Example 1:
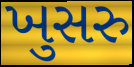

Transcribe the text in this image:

ખુસરુ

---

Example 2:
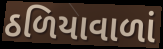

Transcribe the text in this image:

ઠળિયાવાળાં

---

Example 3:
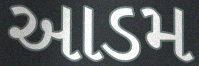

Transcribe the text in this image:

આડમ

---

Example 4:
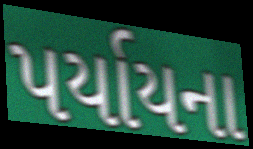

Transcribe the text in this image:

પર્યાયના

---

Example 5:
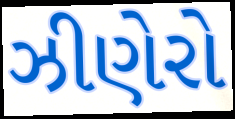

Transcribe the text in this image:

ઝીણેરો